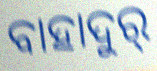
ବାହାଦୁର୍